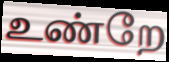
உண்றே